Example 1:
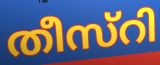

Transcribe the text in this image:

തീസ്റി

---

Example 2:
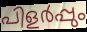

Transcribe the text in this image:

പിളർപ്പും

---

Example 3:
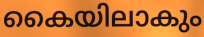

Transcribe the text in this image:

കൈയിലാകും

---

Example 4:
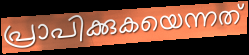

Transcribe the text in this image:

പ്രാപിക്കുകയെന്നത്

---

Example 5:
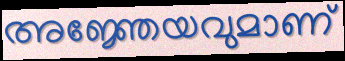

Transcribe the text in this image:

അജ്ഞേയവുമാണ്